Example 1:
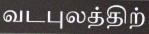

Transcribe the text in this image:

வடபுலத்திற்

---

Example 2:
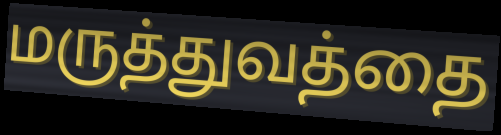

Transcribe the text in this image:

மருத்துவத்தை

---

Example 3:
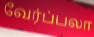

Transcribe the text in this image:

வேர்ப்பலா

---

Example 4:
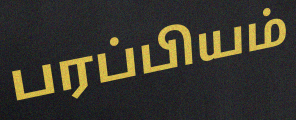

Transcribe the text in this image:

பரப்பியம்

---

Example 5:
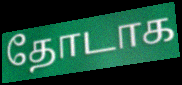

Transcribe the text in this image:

தோடாக